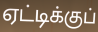
ஏட்டிக்குப்